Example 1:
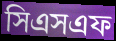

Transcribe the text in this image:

সিএসএফ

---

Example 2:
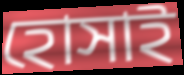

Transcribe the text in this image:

হোসাই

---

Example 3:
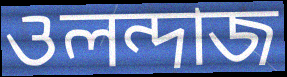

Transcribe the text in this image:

ওলন্দাজ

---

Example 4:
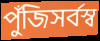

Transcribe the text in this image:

পুঁজিসর্বস্ব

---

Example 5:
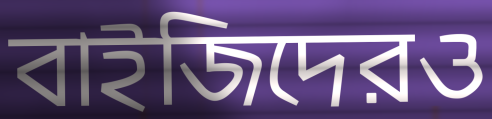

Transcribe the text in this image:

বাইজিদেরও